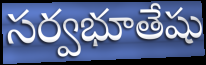
సర్వభూతేషు